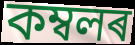
কম্বলৰ